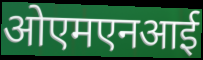
ओएमएनआई